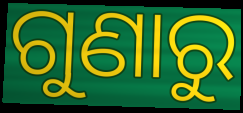
ଗୁଣାରୁ